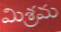
మిశ్రమ